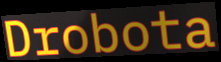
Drobota